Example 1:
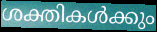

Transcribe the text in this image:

ശക്തികൾക്കും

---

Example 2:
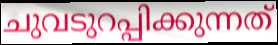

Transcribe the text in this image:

ചുവടുറപ്പിക്കുന്നത്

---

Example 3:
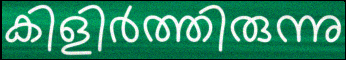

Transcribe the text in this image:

കിളിർത്തിരുന്നു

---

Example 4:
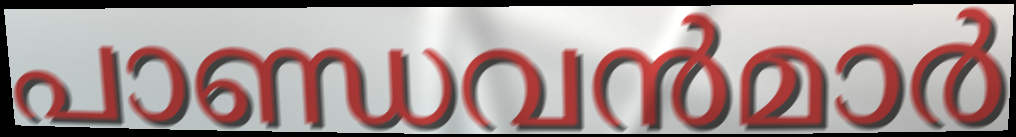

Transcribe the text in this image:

പാണ്ഡവൻമാർ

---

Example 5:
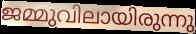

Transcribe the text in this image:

ജമ്മുവിലായിരുന്നു